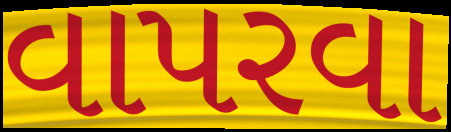
વાપરવા